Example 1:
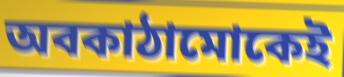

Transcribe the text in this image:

অবকাঠামোকেই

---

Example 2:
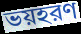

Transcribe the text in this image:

ভয়হরণ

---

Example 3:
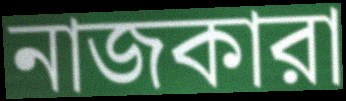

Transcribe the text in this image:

নাজকারা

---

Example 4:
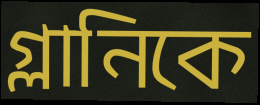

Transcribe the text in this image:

গ্লানিকে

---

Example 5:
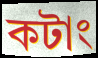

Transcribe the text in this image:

কটাং